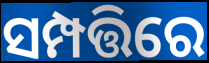
ସମ୍ପତ୍ତିରେ